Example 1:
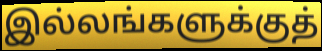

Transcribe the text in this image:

இல்லங்களுக்குத்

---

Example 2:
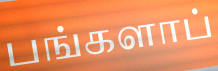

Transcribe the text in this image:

பங்களாப்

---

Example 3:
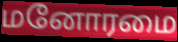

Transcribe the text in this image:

மனோரமை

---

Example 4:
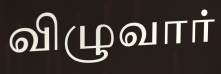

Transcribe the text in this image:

விழுவார்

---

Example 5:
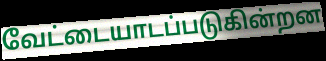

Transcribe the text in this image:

வேட்டையாடப்படுகின்றன